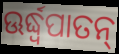
ଊର୍ଦ୍ଧ୍ବପାତନ୍